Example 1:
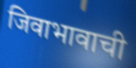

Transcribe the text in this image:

जिवाभावाची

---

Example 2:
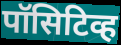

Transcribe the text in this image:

पॉसिटिव्ह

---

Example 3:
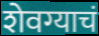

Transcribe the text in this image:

शेवग्याचं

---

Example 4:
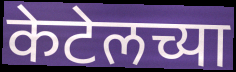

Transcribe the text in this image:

केटेलच्या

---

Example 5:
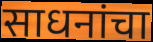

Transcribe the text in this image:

साधनांचा